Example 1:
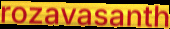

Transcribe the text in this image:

rozavasanth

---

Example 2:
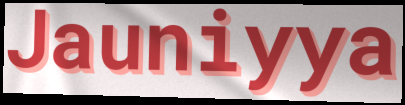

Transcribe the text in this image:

Jauniyya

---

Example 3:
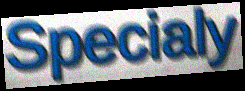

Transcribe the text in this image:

Specialy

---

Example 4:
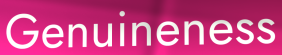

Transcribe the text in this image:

Genuineness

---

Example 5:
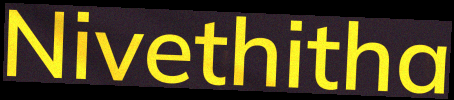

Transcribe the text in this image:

Nivethitha